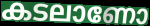
കടലാണോ